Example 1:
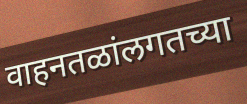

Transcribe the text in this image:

वाहनतळांलगतच्या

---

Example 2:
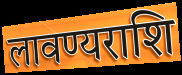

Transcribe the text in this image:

लावण्यराशि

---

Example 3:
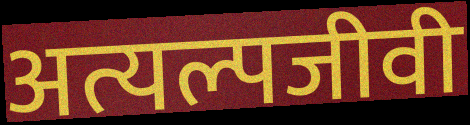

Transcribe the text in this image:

अत्यल्पजीवी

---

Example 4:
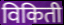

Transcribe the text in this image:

विकिती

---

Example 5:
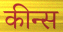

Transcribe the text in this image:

कीन्स